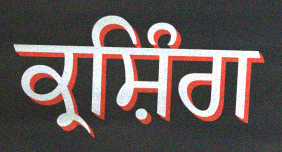
ਕ੍ਰਸ਼ਿੰਗ